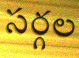
సర్గల